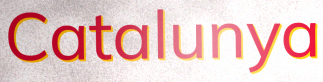
Catalunya